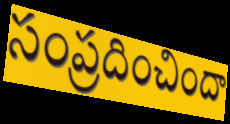
సంప్రదించిందా